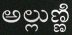
అల్లుణ్ణి